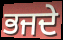
ਭਜਦੇ